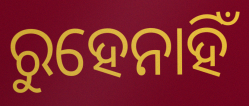
ରୁହେନାହିଁ